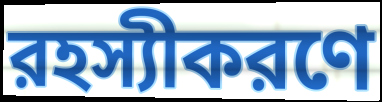
রহস্যীকরণে